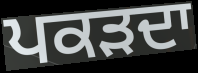
ਪਕੜਦਾ